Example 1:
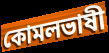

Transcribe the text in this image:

কোমলভাষী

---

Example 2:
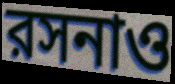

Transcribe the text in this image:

রসনাও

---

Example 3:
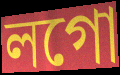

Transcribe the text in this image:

লগো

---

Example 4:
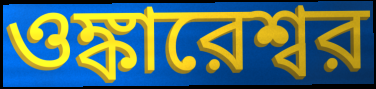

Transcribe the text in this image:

ওঙ্কারেশ্বর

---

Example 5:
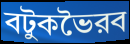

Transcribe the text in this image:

বটুকভৈরব